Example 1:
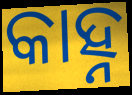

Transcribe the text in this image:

କାହ୍ନ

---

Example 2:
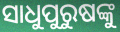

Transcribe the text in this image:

ସାଧୁପୁରୁଷଙ୍କୁ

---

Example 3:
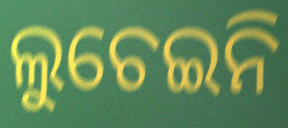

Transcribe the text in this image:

ଲୁଚେଇନି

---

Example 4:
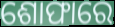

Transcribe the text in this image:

ଶୋଫାରେ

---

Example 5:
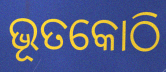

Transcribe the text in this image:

ଭୂତକୋଠି